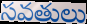
సవతులు